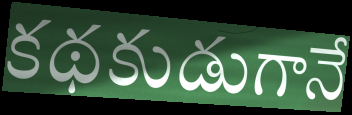
కథకుడుగానే